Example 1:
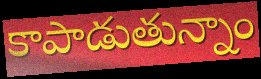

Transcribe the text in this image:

కాపాడుతున్నాం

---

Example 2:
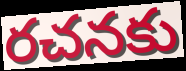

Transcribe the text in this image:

రచనకు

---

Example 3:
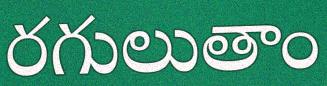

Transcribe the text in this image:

రగులుతాం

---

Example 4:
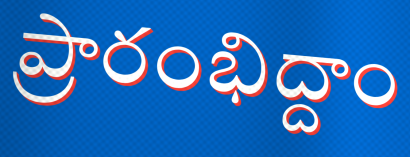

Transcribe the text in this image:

ప్రారంభిద్దాం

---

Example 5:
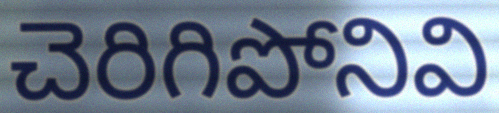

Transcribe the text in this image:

చెరిగిపోనివి